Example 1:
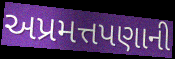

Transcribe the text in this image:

અપ્રમત્તપણાની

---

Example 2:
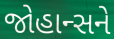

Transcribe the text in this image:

જોહાન્સને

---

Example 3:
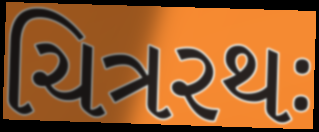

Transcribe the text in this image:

ચિત્રરથઃ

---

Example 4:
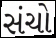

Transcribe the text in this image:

સંચો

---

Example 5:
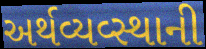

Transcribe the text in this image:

અર્થવ્યવ્સ્થાની